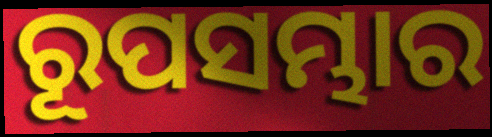
ରୂପସମ୍ଭାର